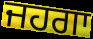
ਜਹਗਾ